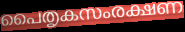
പൈതൃകസംരക്ഷണ